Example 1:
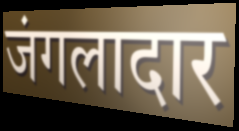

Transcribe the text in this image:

जंगलादार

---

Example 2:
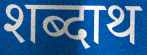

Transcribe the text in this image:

शब्दाथ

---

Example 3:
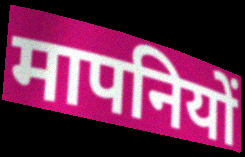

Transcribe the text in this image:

मापनियों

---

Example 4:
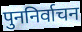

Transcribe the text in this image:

पुननिर्वाचन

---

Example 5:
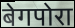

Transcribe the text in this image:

बेगपोरा